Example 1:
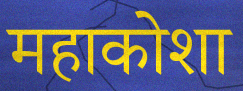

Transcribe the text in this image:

महाकोशा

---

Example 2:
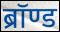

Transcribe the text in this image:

ब्रॉण्ड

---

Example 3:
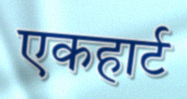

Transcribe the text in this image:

एकहार्ट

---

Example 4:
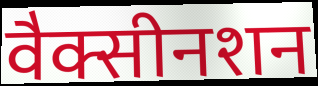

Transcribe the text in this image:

वैक्सीनशन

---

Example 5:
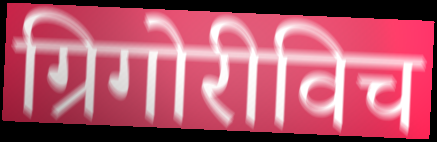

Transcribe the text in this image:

ग्रिगोरीविच